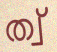
ത്വ്